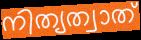
നിത്യത്വാത്